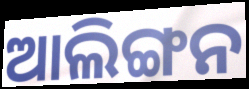
ଆଲିଙ୍ଗନ